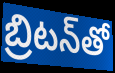
బ్రిటన్‌తో